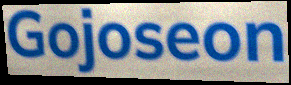
Gojoseon